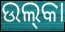
ଉଲ୍‍କା